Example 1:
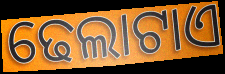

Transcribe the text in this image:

ଢେଲାଟାଏ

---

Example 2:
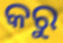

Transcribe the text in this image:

କରୁ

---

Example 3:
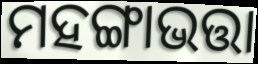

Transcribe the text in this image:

ମହଙ୍ଗାଭତ୍ତା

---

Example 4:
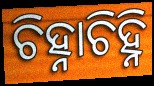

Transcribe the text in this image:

ଚିହ୍ନାଚିହ୍ନି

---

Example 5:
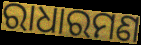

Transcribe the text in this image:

ରାଧାରମଣ